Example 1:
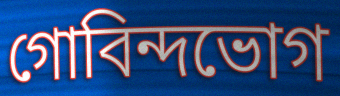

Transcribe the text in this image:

গোবিন্দভোগ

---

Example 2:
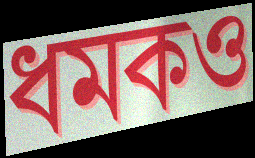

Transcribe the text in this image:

ধমকও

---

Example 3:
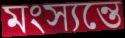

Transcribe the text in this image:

মংস্যন্তে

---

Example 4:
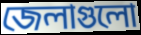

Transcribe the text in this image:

জেলাগুলো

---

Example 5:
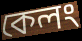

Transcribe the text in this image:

কেলং